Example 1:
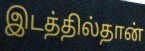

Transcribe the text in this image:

இடத்தில்தான்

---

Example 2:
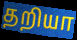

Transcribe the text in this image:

தறியா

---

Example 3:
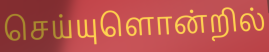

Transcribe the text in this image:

செய்யுளொன்றில்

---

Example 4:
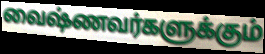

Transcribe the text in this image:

வைஷ்ணவர்களுக்கும்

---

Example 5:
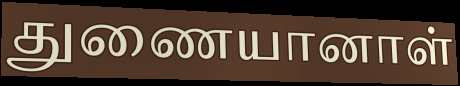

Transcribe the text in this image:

துணையானாள்